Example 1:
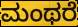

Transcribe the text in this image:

ಮಂಥರೆ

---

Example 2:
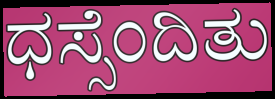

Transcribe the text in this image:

ಧಸ್ಸೆಂದಿತು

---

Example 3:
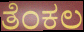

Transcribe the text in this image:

ತೆಂಕಲ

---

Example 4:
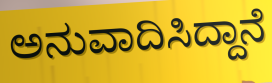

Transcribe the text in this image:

ಅನುವಾದಿಸಿದ್ದಾನೆ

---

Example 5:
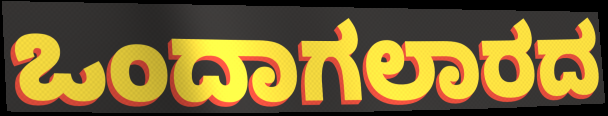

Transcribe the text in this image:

ಒಂದಾಗಲಾರದ